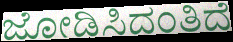
ಜೋಡಿಸಿದಂತಿದೆ